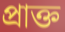
প্রাক্ত